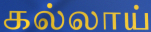
கல்லாய்